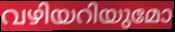
വഴിയറിയുമോ